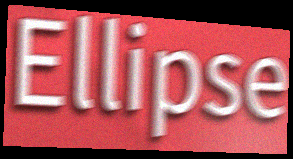
Ellipse